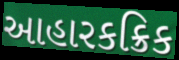
આહારકક્રિક